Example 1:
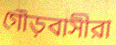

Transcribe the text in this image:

গৌড়বাসীরা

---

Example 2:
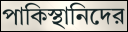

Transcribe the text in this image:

পাকিস্থানিদের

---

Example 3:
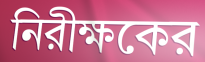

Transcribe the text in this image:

নিরীক্ষকের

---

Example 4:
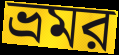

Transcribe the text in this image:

ভ্রমর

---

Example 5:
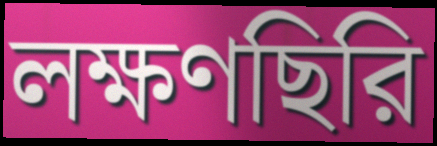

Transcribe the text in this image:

লক্ষণছিরি